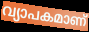
വ്യാപകമാണ്